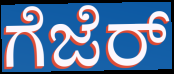
ಗೆಜೆರ್